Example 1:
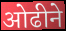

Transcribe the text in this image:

ओढीने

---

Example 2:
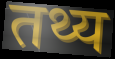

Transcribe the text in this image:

तथ्य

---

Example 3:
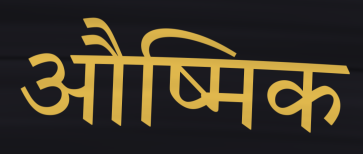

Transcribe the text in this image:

औष्मिक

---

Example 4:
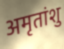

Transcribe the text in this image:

अमृतांशु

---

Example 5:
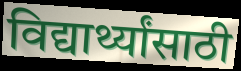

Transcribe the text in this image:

विद्यार्थ्यांसाठी